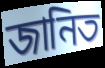
জানিত